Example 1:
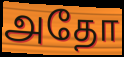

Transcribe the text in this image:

அதோ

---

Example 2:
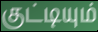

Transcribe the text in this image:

குட்டியும்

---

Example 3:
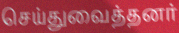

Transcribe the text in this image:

செய்துவைத்தனர்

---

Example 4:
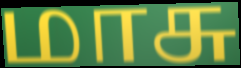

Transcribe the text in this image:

மாசு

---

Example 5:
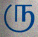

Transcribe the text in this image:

ரு